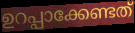
ഉറപ്പാക്കേണ്ടത്